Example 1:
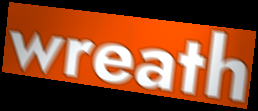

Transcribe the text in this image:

wreath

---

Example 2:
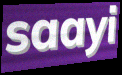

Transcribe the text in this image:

saayi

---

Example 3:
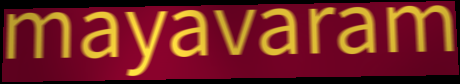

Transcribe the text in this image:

mayavaram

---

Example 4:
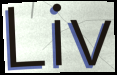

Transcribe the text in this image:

Liv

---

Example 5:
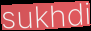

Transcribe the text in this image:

sukhdi